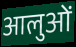
आलुओं